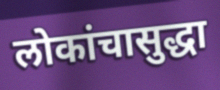
लोकांचासुद्धा